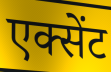
एक्सेंट